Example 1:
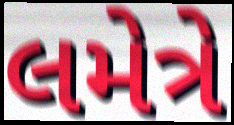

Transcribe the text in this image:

લમેત્રે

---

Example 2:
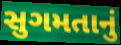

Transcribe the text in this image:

સુગમતાનું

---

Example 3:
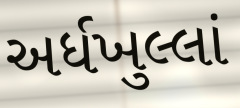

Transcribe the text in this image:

અર્ધખુલ્લાં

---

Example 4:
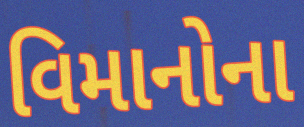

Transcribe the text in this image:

વિમાનોના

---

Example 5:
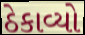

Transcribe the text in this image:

ઠેકાવ્યો